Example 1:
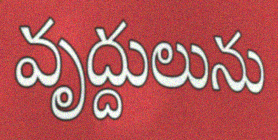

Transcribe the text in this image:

వృద్దులును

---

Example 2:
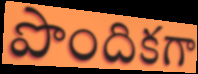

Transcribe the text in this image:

పొందికగా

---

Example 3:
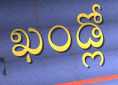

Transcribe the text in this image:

ఖండ్లో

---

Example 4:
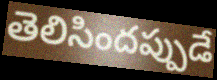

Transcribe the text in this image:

తెలిసిందప్పుడే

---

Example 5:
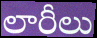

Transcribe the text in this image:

లారీలు